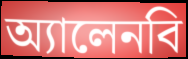
অ্যালেনবি